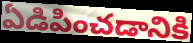
ఏడిపించడానికి